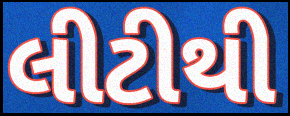
લીટીથી